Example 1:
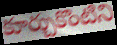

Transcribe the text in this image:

కూర్చుకొంటిని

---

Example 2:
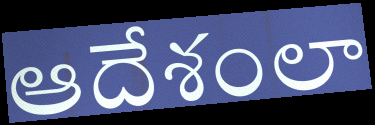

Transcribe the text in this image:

ఆదేశంలా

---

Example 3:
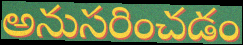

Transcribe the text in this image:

అనుసరించడం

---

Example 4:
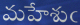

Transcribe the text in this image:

మహేశుఁ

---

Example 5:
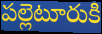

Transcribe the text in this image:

పల్లెటూరుకి